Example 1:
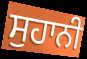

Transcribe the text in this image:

ਸੁਹਾਨੀ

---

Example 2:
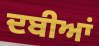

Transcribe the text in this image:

ਦਬੀਆਂ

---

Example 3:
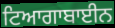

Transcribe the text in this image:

ਟਿਆਗਾਬਾਈਨ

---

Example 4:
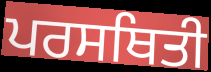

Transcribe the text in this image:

ਪਰਸਥਿਤੀ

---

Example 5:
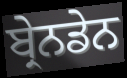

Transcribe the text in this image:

ਬ੍ਰੇਨਡੇਨ